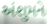
અંશુમને